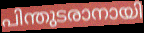
പിന്തുടരാനായി